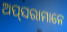
ଅପ୍‌ସରାମାନେ